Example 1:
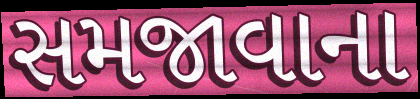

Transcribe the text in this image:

સમજાવાના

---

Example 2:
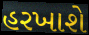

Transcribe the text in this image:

હરખાશે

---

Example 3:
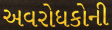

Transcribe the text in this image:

અવરોધકોની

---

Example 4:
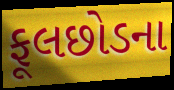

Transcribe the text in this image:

ફૂલછોડના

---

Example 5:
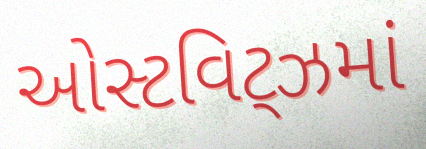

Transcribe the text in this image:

ઓસ્ટવિટ્ઝમાં